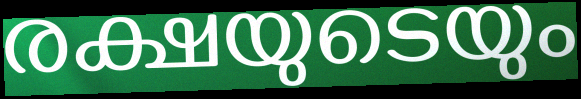
രക്ഷയുടെയും